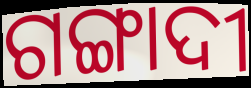
ଗଙ୍ଗାଦୀ